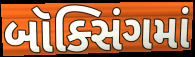
બૉક્સિંગમાં